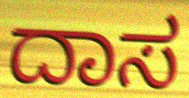
ದಾಸ